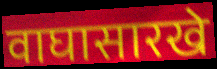
वाघासारखे